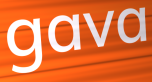
gava